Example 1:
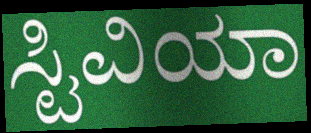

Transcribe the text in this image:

ಸ್ಟಿವಿಯಾ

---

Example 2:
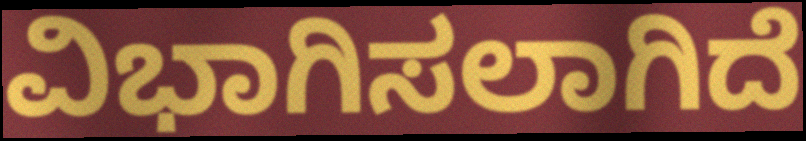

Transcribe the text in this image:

ವಿಭಾಗಿಸಲಾಗಿದೆ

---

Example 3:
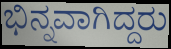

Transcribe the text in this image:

ಭಿನ್ನವಾಗಿದ್ದರು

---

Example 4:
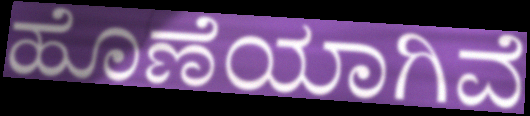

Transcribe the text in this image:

ಹೊಣೆಯಾಗಿವೆ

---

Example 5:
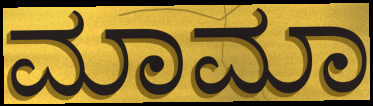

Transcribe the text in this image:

ಮಾಮಾ